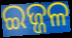
ଇଜ୍ଜଳ